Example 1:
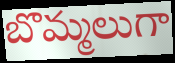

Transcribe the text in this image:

బొమ్మలుగా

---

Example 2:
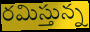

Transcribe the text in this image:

రమిస్తున్న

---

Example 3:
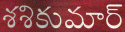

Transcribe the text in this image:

శశికుమార్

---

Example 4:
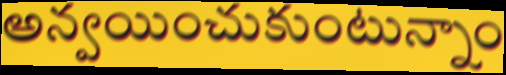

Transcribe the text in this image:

అన్వయించుకుంటున్నాం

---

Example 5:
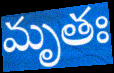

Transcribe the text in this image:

మృతః